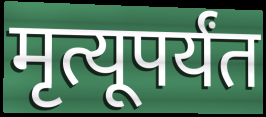
मृत्यूपर्यंत